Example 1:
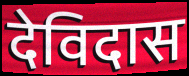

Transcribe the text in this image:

देविदास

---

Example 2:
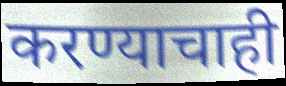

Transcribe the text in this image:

करण्याचाही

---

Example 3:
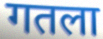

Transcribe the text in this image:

गतला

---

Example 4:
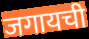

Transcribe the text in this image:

जगायची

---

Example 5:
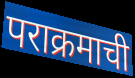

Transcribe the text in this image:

पराक्रमाची